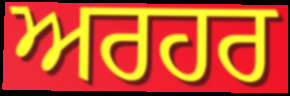
ਅਰਹਰ